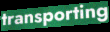
transporting